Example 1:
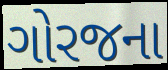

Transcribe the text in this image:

ગોરજના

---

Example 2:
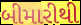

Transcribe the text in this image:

બીમારીથી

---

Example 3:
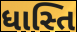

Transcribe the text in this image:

ધાસ્તિ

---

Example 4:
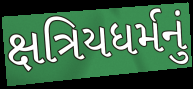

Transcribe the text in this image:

ક્ષત્રિયધર્મનું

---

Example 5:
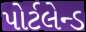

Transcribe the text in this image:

પોર્ટલેન્ડ